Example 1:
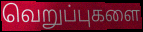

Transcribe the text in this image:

வெறுப்புகளை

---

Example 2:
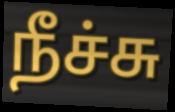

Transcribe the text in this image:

நீச்சு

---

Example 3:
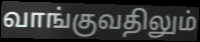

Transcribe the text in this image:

வாங்குவதிலும்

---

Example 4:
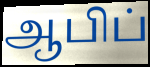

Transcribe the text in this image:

ஆபிப்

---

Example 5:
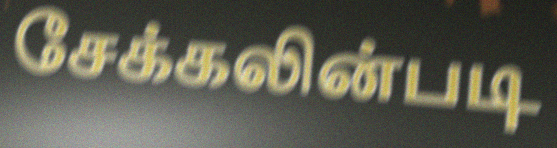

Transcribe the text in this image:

சேக்கலின்படி